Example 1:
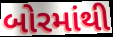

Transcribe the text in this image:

બોરમાંથી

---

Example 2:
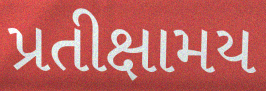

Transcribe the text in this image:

પ્રતીક્ષામય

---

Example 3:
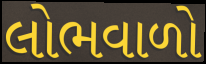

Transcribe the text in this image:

લોભવાળો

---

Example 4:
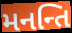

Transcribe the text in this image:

મનન્તિ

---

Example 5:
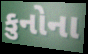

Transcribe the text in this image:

કુનોના